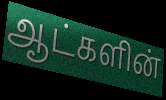
ஆட்களின்